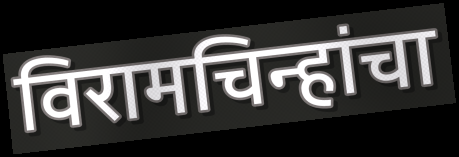
विरामचिन्हांचा